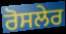
ਰੋਸਲੇਰ